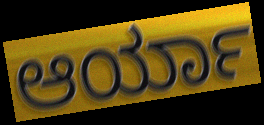
ಆರ್ಯಾ